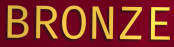
BRONZE